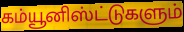
கம்யூனிஸ்ட்டுகளும்